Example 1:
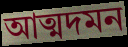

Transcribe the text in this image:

আত্মদমন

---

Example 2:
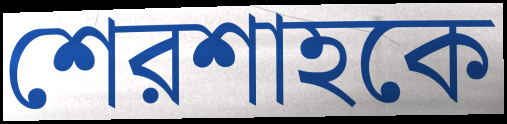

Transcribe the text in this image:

শেরশাহকে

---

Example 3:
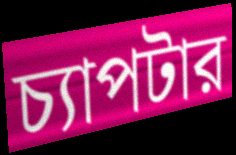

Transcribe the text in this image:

চ্যাপটার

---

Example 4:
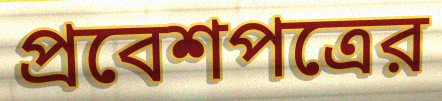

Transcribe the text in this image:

প্রবেশপত্রের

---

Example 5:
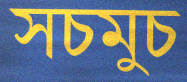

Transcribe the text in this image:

সচমুচ